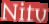
Nitu